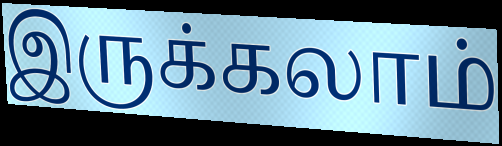
இருக்கலாம்